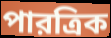
পারত্রিক